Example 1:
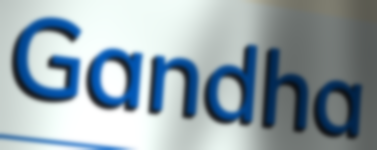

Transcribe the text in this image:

Gandha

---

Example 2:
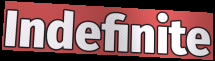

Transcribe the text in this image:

Indefinite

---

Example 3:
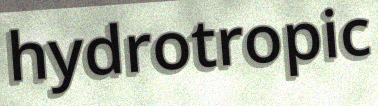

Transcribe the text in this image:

hydrotropic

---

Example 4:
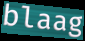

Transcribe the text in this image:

blaag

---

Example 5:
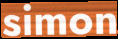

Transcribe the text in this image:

simon